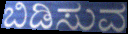
ಬಿಡಿಸುವ